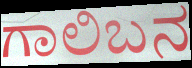
ಗಾಲಿಬನ